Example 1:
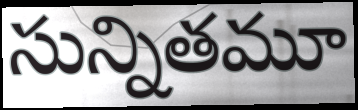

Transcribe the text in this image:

సున్నితమూ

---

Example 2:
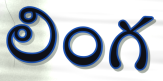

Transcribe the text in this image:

లింగ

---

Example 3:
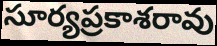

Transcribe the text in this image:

సూర్యప్రకాశరావు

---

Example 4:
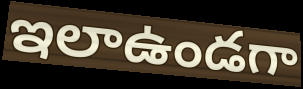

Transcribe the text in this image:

ఇలాఉండగా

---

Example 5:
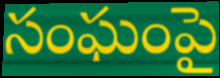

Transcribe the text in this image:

సంఘంపై